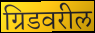
ग्रिडवरील